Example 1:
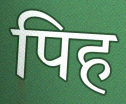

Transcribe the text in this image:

पिह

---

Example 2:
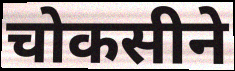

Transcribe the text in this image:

चोकसीने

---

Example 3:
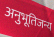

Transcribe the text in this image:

अनुभूतिजन्य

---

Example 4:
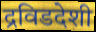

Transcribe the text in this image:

द्रविडदेशी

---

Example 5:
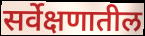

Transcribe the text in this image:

सर्वेक्षणातील